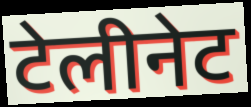
टेलीनेट